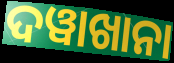
ଦୱାଖାନା